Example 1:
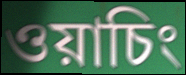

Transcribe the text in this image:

ওয়াচিং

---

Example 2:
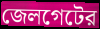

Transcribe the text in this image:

জেলগেটের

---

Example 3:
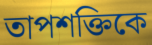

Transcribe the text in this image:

তাপশক্তিকে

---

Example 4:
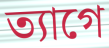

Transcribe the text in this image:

ত্যাগে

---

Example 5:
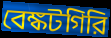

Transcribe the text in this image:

বেঙ্কটগিরি